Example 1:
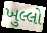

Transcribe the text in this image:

ખુલ્લો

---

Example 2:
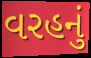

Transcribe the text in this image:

વરહનું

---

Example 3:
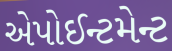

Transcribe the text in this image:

એપોઈન્ટમેન્ટ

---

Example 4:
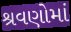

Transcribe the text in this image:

શ્રવણોમાં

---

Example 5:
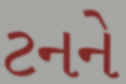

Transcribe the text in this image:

ટનને